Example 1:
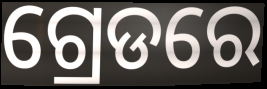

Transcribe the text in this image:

ଗ୍ରେଡରେ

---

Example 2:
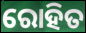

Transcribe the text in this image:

ରୋହିତ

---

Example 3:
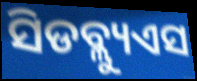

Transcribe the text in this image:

ସିଡବ୍ଲ୍ୟୁଏସ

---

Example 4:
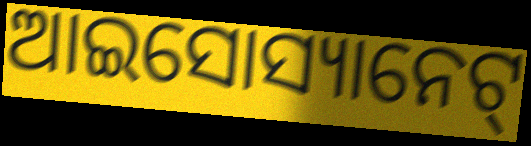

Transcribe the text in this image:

ଆଇସୋସ୍ୟାନେଟ୍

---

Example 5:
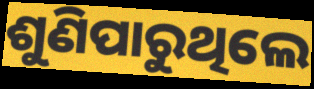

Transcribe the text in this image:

ଶୁଣିପାରୁଥିଲେ